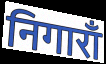
निगाराँ